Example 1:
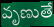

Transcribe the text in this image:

వృణుతే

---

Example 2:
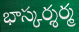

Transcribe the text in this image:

భాస్కర్శర్మ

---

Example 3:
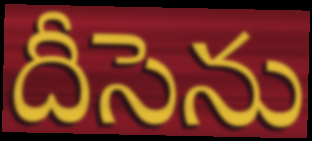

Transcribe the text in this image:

దీసెను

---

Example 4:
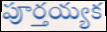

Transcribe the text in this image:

పూర్తయ్యక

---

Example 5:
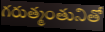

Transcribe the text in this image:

గరుత్మంతునితో